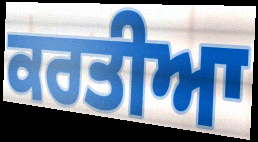
ਕਰਤੀਆ